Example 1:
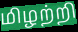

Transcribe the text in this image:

மிழற்றி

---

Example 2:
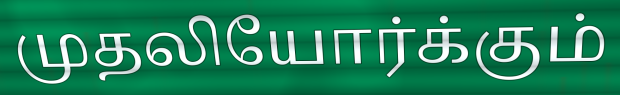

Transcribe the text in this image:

முதலியோர்க்கும்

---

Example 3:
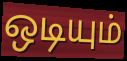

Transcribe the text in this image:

ஒடியும்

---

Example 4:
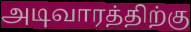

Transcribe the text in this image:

அடிவாரத்திற்கு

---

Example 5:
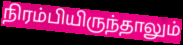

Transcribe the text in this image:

நிரம்பியிருந்தாலும்